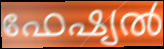
ഫേഷ്യൽ